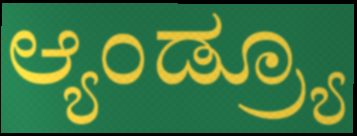
ಆ್ಯಂಡ್ರ್ಯೂ